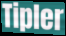
Tipler